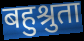
बहुश्रुता